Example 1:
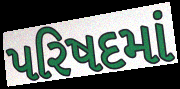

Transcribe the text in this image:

પરિષદમાં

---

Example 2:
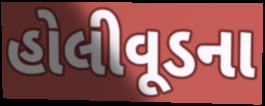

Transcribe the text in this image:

હોલીવૂડના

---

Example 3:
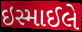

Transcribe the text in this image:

ઇસ્માઈલે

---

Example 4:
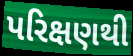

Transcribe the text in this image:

પરિક્ષણથી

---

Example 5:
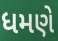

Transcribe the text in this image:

ધમણે